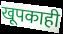
खूपकाही